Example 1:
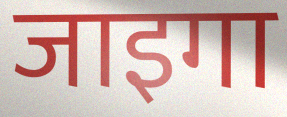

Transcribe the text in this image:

जाइगा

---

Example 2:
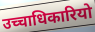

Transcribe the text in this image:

उच्चाधिकारियो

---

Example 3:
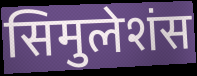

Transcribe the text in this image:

सिमुलेशंस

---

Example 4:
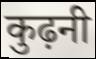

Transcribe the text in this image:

कुढ़नी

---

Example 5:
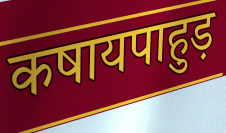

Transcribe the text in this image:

कषायपाहुड़